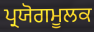
ਪ੍ਰਯੋਗਮੂਲਕ